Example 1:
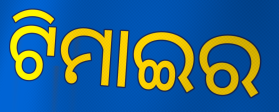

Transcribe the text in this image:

ଟିମାଇର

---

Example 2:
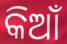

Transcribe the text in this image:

କିଆଁ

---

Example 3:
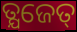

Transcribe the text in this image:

ତ୍ଯଜେତ୍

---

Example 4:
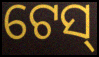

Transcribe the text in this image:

ଟେସ୍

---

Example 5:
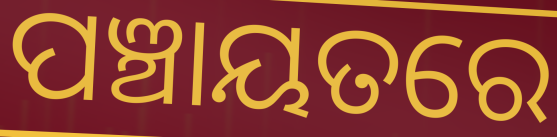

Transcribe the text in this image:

ପଞ୍ଚାୟତରେ